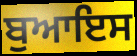
ਬੁਆਇਸ